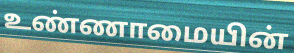
உண்ணாமையின்